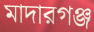
মাদারগঞ্জ